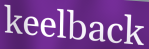
keelback